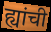
ह्यांची